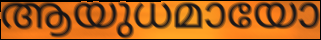
ആയുധമായോ